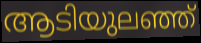
ആടിയുലഞ്ഞ്